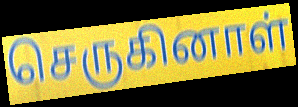
செருகினாள்